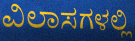
ವಿಲಾಸಗಳಲ್ಲಿ